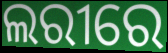
ଲରୀରେ